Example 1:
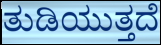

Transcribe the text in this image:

ತುಡಿಯುತ್ತದೆ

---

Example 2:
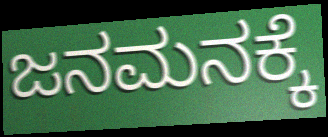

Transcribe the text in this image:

ಜನಮನಕ್ಕೆ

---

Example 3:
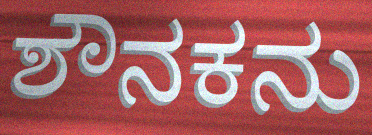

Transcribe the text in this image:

ಶೌನಕನು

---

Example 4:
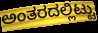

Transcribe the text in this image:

ಅಂತರದಲ್ಲಿಟ್ಟು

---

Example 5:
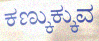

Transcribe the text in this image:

ಕಣ್ಕುಕ್ಕುವ